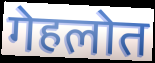
गेहलोत